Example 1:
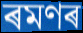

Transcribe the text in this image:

ৰমণৰ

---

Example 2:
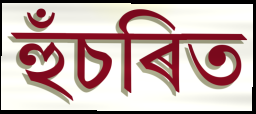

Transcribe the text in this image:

হুঁচৰিত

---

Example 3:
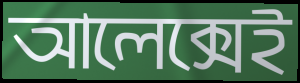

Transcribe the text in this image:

আলেক্সেই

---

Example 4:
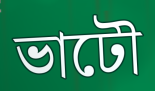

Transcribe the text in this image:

ভাটৌ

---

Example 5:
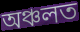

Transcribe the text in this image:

অঞ্চলত